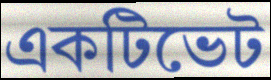
একটিভেট